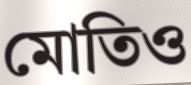
মোতিও